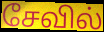
சேவில்